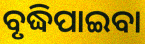
ବୃଦ୍ଧିପାଇବା